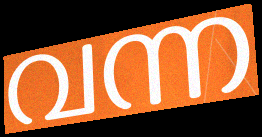
വന്ന